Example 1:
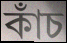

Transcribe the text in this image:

কাঁচ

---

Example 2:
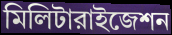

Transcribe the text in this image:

মিলিটারাইজেশন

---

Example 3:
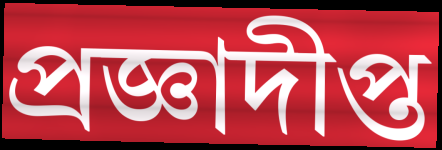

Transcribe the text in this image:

প্রজ্ঞাদীপ্ত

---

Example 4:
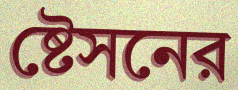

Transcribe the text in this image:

ষ্টেসনের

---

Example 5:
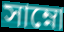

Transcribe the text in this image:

সাম্নো